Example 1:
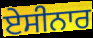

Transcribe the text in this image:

ਏਸੀਨਾਰ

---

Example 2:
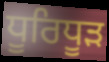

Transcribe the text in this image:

ਧੂਰਿਧੂੜ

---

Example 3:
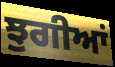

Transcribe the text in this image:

ਝੁਗੀਆਂ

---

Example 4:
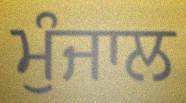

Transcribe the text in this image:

ਮੁੰਜਾਲ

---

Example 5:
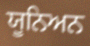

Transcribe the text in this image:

ਯੂਨਿਅਨ